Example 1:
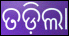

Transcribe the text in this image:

ତଡ଼ିଲା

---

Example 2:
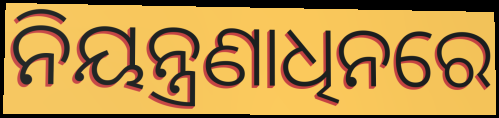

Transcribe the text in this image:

ନିୟନ୍ତ୍ରଣାଧିନରେ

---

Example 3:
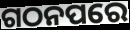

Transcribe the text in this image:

ଗଠନପରେ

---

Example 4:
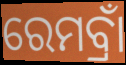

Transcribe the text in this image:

ରେମବ୍ରାଁ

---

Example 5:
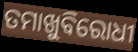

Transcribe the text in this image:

ତମାଖୁବିରୋଧୀ